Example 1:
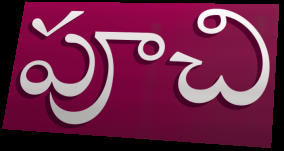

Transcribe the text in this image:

పూచి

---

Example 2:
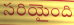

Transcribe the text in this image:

సరియైంది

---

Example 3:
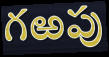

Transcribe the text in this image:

గఱపు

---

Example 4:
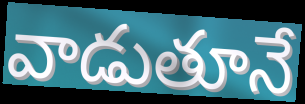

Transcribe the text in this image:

వాడుతూనే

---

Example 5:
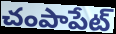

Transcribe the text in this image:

చంపాపేట్